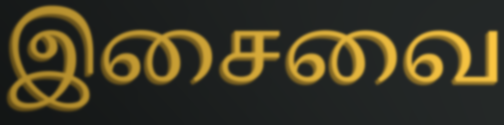
இசைவை